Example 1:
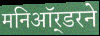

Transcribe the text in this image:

मनिऑर्डरने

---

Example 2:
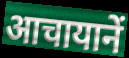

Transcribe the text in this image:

आचायानें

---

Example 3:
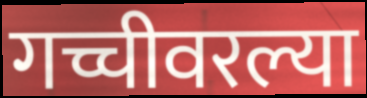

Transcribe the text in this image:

गच्चीवरल्या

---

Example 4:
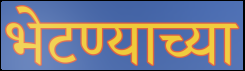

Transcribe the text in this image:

भेटण्याच्या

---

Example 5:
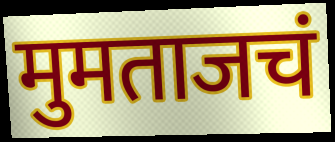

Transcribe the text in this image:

मुमताजचं